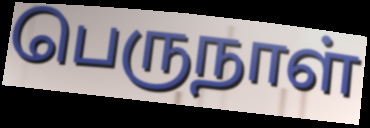
பெருநாள்